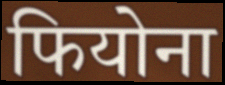
फियोना